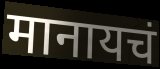
मानायचं